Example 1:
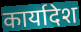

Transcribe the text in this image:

कार्यादेश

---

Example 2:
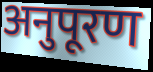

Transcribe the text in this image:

अनुपूरण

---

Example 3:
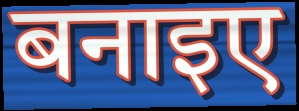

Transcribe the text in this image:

बनाइए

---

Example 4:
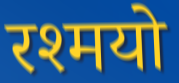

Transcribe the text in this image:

रश्मयो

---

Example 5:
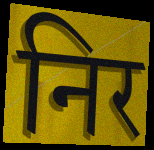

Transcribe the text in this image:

निर